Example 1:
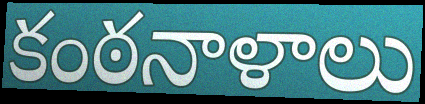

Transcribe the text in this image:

కంఠనాళాలు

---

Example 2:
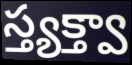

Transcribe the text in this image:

స్త్యక్త్వా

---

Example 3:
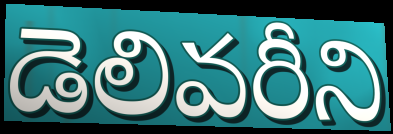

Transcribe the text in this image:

డెలివరీని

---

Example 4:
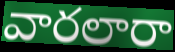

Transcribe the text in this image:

వారలారా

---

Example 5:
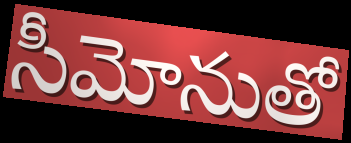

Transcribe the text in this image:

సీమోనుతో